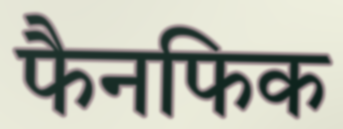
फैनफिक